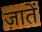
ज़ातें